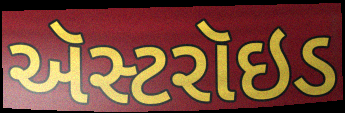
ઍસ્ટરૉઇડ